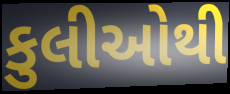
કુલીઓથી